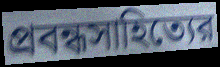
প্রবন্ধসাহিত্যের